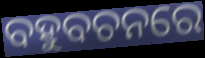
ବହୁବଚନରେ